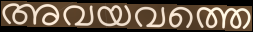
അവയവത്തെ